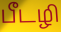
பீடழி